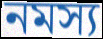
নমস্য